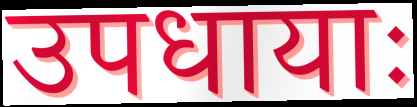
उपधायाः